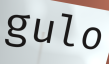
gulo